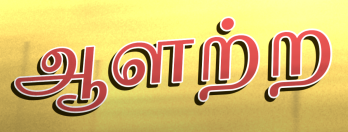
ஆளற்ற